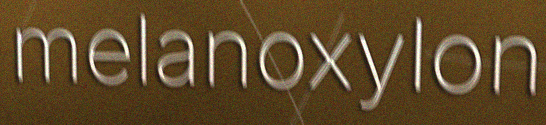
melanoxylon